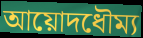
আয়োদধৌম্য